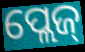
ପ୍ଲେଜ୍